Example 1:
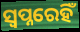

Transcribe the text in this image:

ସ୍ୱପ୍ନରେହିଁ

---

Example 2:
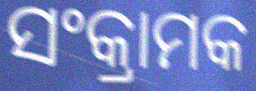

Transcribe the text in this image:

ସଂକ୍ରାମକ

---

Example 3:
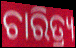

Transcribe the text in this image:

ଚାରିତ୍ର୍ୟ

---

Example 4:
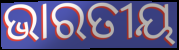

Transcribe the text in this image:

ଭାରତୀୟ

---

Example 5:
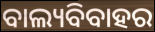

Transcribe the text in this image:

ବାଲ୍ୟବିବାହର